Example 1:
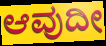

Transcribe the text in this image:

ಆವುದೀ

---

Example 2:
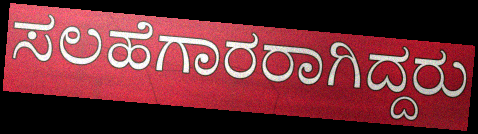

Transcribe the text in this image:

ಸಲಹೆಗಾರರಾಗಿದ್ದರು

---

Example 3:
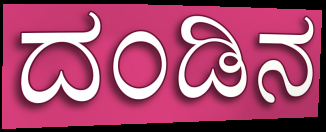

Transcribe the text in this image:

ದಂಡಿನ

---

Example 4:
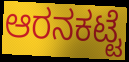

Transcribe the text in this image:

ಆರನಕಟ್ಟೆ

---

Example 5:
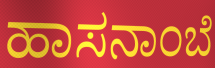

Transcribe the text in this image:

ಹಾಸನಾಂಬೆ